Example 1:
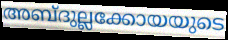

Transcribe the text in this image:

അബ്ദുല്ലക്കോയയുടെ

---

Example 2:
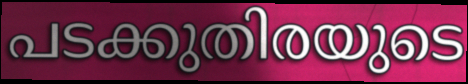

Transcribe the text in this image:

പടക്കുതിരയുടെ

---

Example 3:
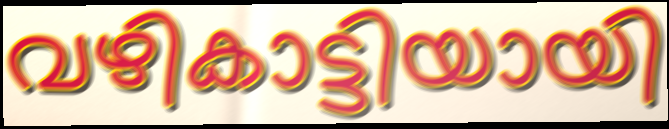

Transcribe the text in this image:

വഴികാട്ടിയായി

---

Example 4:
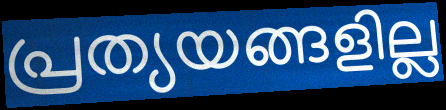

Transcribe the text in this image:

പ്രത്യയങ്ങളില്ല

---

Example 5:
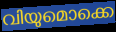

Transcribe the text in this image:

വിയുമൊക്കെ